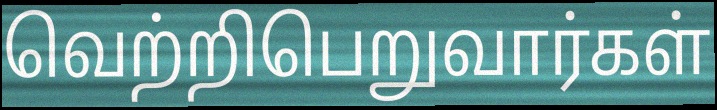
வெற்றிபெறுவார்கள்